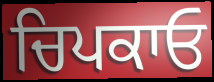
ਚਿਪਕਾਓ